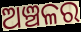
ଅଞ୍ଚଳର